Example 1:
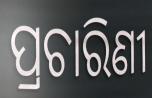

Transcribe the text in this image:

ପ୍ରଚାରିଣୀ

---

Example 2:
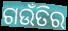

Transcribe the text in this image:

ଗଉଁତିର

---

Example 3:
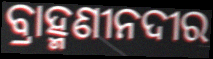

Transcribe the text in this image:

ବ୍ରାହ୍ମଣୀନଦୀର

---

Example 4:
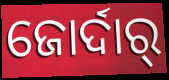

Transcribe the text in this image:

ଜୋର୍ଦାର୍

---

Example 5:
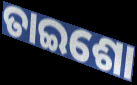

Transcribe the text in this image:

ତାଇଶୋ